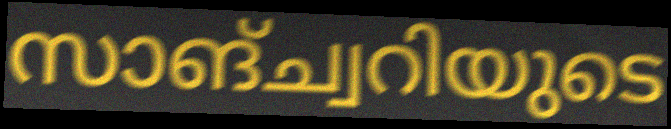
സാങ്ച്വറിയുടെ